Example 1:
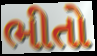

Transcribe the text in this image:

ભીતો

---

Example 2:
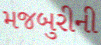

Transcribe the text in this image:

મજબુરીની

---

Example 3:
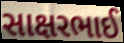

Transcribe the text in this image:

સાક્ષરભાઈ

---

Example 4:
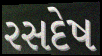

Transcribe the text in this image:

રસદેષ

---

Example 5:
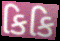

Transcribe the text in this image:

કિકિ